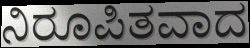
ನಿರೂಪಿತವಾದ